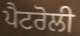
ਪੈਟਰੋਲੀ